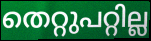
തെറ്റുപറ്റില്ല